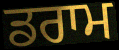
ਡਰਾਮ